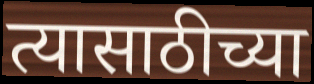
त्यासाठीच्या